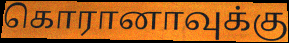
கொரானாவுக்கு